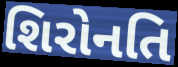
શિરોનતિ